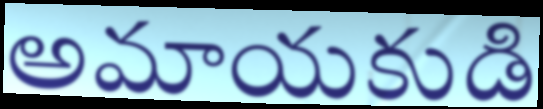
అమాయకుడి